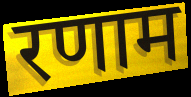
रणाम